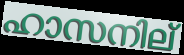
ഹാസനില്